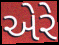
એરે